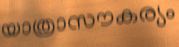
യാത്രാസൗകര്യം